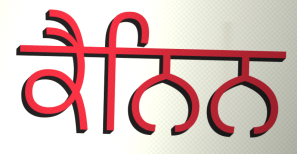
ਕੈਨਿਨ